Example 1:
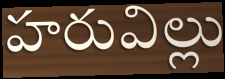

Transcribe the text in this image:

హరువిల్లు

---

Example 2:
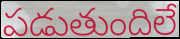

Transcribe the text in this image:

పడుతుందిలే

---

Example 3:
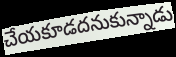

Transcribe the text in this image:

చేయకూడదనుకున్నాడు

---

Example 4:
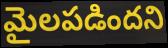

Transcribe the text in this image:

మైలపడిందని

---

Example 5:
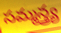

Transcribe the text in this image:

సమ్మన్త్ర్య